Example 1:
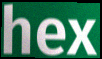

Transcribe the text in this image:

hex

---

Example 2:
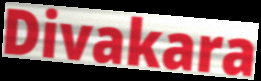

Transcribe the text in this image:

Divakara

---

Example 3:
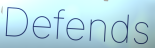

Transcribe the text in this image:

Defends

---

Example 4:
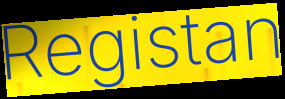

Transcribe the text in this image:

Registan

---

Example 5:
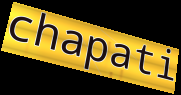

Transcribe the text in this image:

chapati